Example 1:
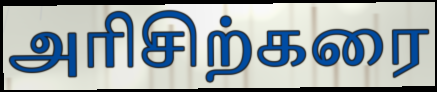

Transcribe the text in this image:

அரிசிற்கரை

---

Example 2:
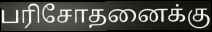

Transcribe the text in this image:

பரிசோதனைக்கு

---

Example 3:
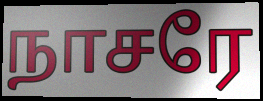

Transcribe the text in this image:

நாசரே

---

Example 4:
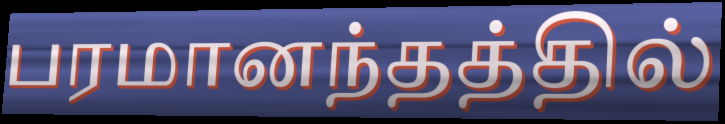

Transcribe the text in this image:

பரமானந்தத்தில்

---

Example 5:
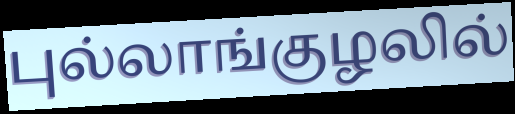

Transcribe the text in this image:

புல்லாங்குழலில்